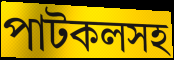
পাটকলসহ